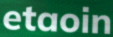
etaoin